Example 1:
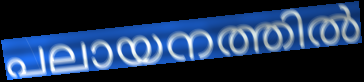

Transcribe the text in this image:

പലായനത്തിൽ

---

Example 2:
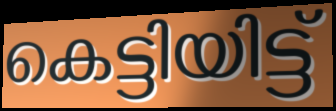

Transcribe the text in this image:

കെട്ടിയിട്ട്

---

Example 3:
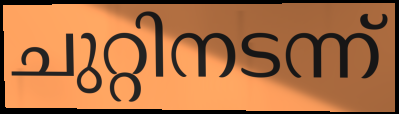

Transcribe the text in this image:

ചുറ്റിനടന്ന്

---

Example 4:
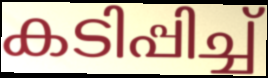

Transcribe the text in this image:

കടിപ്പിച്ച്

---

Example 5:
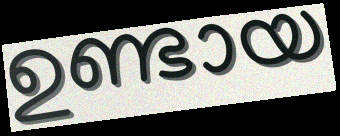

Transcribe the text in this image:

ഉണ്ടായ